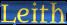
Leith